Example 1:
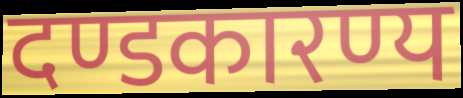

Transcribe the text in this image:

दण्डकारण्य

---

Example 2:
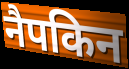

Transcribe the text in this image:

नैपकिन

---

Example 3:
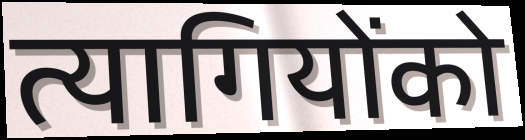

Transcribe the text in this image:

त्यागियोंको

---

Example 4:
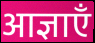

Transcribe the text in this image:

आज्ञाएँ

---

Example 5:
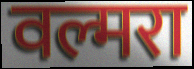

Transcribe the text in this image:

वल्मरा